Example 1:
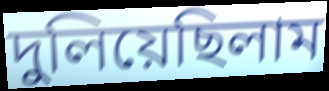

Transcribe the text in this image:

দুলিয়েছিলাম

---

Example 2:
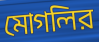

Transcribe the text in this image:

মোগলির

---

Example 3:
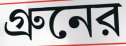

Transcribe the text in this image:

গ্রুনের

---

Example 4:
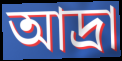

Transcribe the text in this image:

আদ্রা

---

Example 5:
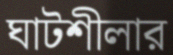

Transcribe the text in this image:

ঘাটশীলার